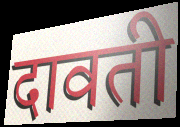
दावती